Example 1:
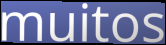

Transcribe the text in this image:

muitos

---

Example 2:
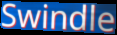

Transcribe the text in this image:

Swindle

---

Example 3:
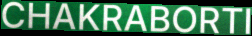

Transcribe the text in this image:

CHAKRABORTI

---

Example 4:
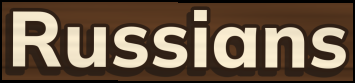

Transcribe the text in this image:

Russians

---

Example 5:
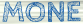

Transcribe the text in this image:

MONE